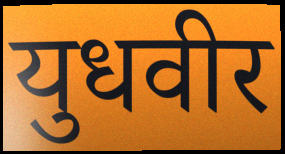
युधवीर